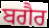
ਬਗੈਰ